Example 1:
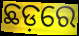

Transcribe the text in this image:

ଛଡ଼ରେ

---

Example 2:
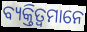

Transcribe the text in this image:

ବ୍ୟକ୍ତିତ୍ୱମାନେ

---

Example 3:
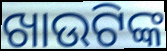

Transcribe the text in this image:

ଖାଉଟିଙ୍କ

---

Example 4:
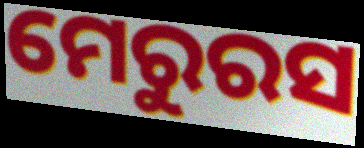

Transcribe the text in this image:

ମେରୁରସ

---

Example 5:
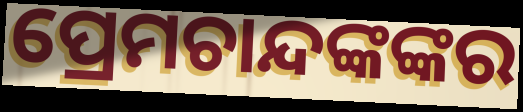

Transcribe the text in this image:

ପ୍ରେମଚାନ୍ଦଙ୍କଙ୍କର